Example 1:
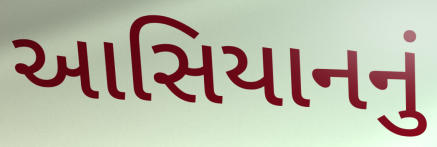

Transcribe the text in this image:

આસિયાનનું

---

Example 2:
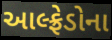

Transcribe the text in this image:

આલ્ફ્રેડોના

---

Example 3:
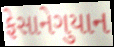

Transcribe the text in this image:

ફેસાનેગુયાન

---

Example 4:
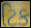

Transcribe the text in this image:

ટિક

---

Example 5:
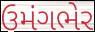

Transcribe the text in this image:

ઉમંગભેર